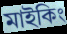
মাইকিং